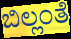
ಬಿಲ್ಲಂತೆ